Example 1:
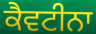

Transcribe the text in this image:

ਕੈਵਟੀਨਾ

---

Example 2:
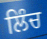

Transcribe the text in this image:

ਲਿੰਚ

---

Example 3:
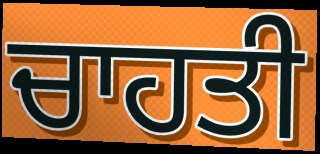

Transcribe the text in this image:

ਚਾਹਤੀ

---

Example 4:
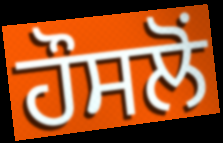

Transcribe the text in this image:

ਹੌਸਲੋਂ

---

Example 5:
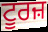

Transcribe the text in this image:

ਟੂਰਜ਼